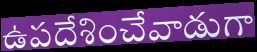
ఉపదేశించేవాడుగా